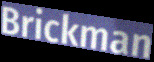
Brickman